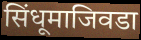
सिंधूमाजिवडा